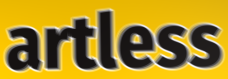
artless